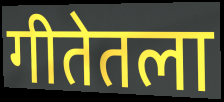
गीतेतला